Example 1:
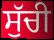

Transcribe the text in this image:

ਸੁੱਚੀ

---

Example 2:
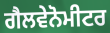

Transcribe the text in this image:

ਗੈਲਵੇਨੋਮੀਟਰ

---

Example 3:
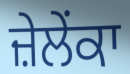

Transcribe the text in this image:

ਜ਼ੇਲੇਂਕਾ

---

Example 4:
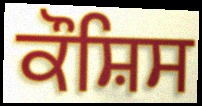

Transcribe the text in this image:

ਕੌਸ਼ਿਸ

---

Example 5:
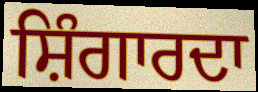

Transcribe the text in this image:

ਸ਼ਿੰਗਾਰਦਾ